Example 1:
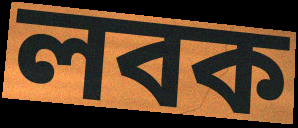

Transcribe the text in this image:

লবক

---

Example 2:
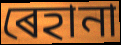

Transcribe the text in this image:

ৰেহানা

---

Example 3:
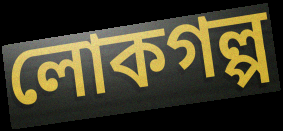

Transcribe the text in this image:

লোকগল্প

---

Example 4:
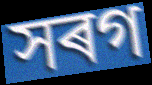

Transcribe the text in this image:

সৰগ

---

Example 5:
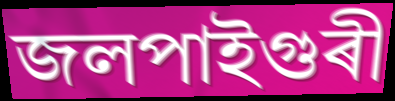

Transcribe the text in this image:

জলপাইগুৰী